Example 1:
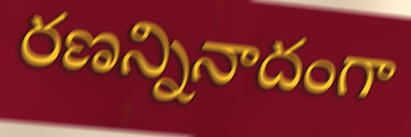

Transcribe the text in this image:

రణన్నినాదంగా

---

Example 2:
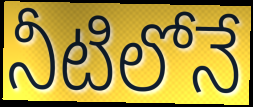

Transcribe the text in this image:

నీటిలోనే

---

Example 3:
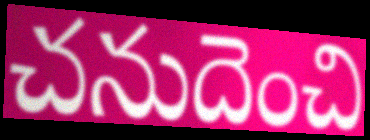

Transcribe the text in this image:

చనుదెంచి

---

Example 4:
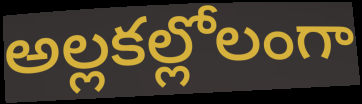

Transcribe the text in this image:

అల్లకల్లోలంగా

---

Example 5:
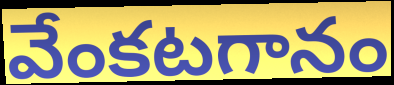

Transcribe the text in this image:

వేంకటగానం